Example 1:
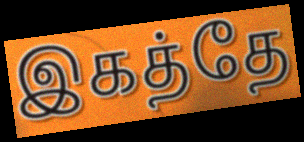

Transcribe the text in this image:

இகத்தே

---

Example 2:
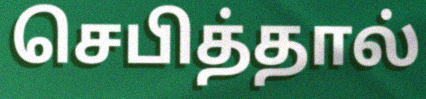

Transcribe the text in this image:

செபித்தால்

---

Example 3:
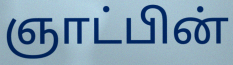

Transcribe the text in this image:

ஞாட்பின்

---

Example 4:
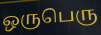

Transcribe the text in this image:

ஒருபெரு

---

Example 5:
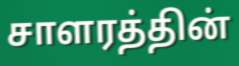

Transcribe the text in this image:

சாளரத்தின்